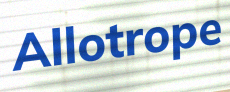
Allotrope